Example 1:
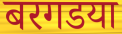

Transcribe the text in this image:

बरगडया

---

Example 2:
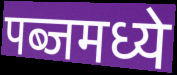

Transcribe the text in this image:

पब्जमध्ये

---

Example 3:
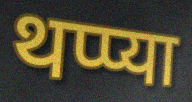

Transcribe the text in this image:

थप्प्या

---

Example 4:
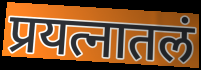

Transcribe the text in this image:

प्रयत्नातलं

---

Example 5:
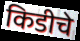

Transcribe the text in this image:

किडीचे